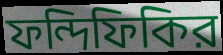
ফন্দিফিকির